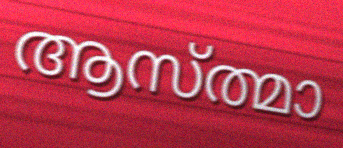
ആസ്ത്മാ